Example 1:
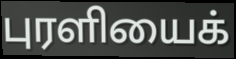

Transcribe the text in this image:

புரளியைக்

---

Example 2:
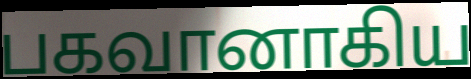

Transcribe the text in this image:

பகவானாகிய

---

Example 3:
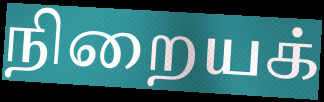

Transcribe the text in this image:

நிறையக்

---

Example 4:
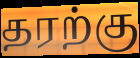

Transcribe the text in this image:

தரற்கு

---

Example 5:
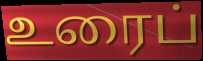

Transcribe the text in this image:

உரைப்